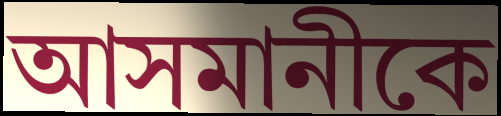
আসমানীকে